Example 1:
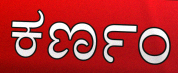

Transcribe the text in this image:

ಕರ್ಣಂ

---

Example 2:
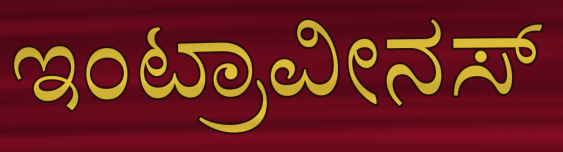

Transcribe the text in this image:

ಇಂಟ್ರಾವೀನಸ್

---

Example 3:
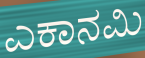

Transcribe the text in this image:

ಎಕಾನಮಿ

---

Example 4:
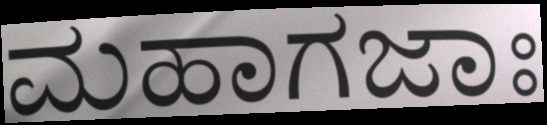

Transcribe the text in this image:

ಮಹಾಗಜಾಃ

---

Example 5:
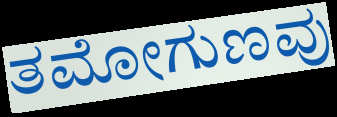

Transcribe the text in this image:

ತಮೋಗುಣವು